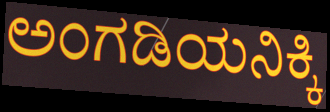
ಅಂಗಡಿಯನಿಕ್ಕಿ